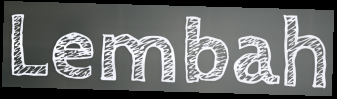
Lembah